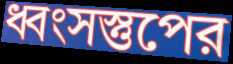
ধ্বংসস্তুপের